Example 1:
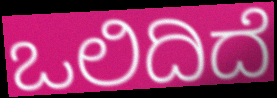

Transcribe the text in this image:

ಒಲಿದಿದೆ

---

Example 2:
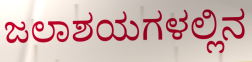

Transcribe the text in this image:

ಜಲಾಶಯಗಳಲ್ಲಿನ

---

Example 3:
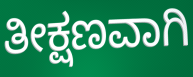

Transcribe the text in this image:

ತೀಕ್ಷಣವಾಗಿ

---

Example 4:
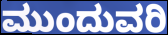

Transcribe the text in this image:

ಮುಂದುವರಿ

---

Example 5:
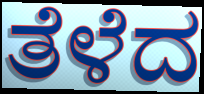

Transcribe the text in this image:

ತೆಳೆದ